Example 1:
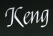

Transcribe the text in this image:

Keng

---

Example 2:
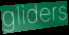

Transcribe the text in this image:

gliders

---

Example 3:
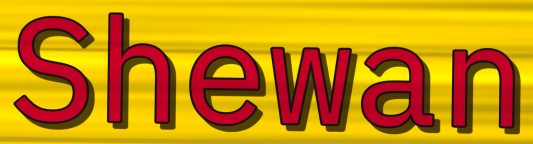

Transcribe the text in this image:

Shewan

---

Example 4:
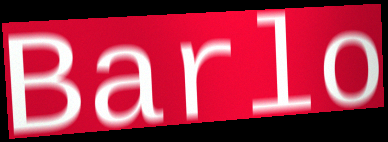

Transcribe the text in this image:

Barlo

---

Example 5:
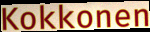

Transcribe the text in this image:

Kokkonen